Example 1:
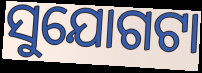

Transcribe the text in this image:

ସୁଯୋଗଟା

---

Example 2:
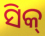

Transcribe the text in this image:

ସିକ୍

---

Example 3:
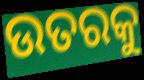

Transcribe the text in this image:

ଉତରକୁ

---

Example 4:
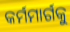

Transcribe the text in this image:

କର୍ମମାର୍ଗକୁ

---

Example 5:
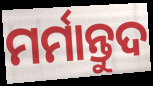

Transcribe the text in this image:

ମର୍ମାନ୍ତୁଦ